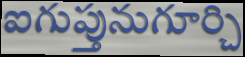
ఐగుప్తునుగూర్చి